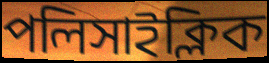
পলিসাইক্লিক